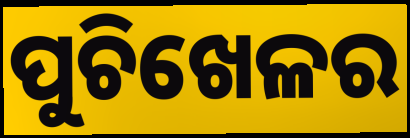
ପୁଚିଖେଳର